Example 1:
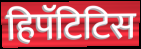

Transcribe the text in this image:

हिपॅटिटिस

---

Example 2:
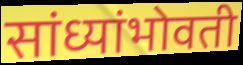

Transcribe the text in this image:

सांध्यांभोवती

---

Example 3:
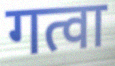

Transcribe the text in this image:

गत्वा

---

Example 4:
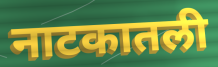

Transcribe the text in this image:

नाटकातली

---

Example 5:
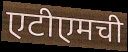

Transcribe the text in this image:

एटीएमची